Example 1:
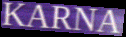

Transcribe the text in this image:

KARNA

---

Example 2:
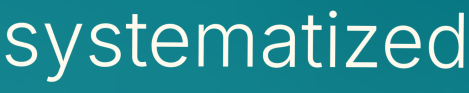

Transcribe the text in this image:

systematized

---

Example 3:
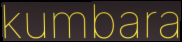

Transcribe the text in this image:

kumbara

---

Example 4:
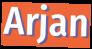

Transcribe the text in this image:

Arjan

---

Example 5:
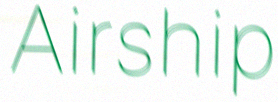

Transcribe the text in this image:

Airship